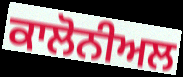
ਕਾਲੋਨੀਅਲ